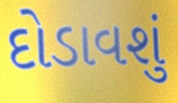
દોડાવશું